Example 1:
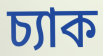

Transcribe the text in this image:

চ্যাক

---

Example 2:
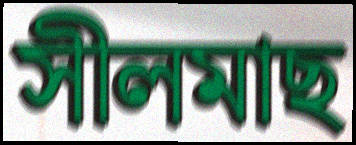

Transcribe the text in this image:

সীলমাছ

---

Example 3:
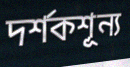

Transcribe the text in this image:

দর্শকশূন্য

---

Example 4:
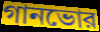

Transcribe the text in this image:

গানভোর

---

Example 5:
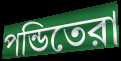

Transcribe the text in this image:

পন্ডিতেরা